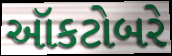
ઑકટોબરે